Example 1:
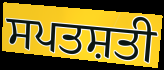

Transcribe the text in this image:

ਸਪਤਸ਼ਤੀ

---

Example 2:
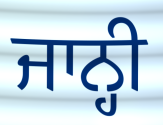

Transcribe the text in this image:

ਜਾਨ੍ਹੀ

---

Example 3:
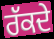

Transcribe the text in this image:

ਰੱਕਦੇ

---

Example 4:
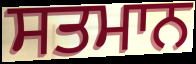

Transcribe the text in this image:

ਸਤਮਾਨ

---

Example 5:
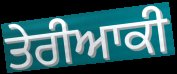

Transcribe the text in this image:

ਤੇਰੀਆਕੀ